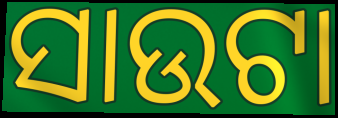
ସାଉଟା